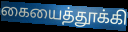
கையைத்தூக்கி